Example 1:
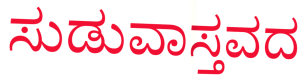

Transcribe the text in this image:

ಸುಡುವಾಸ್ತವದ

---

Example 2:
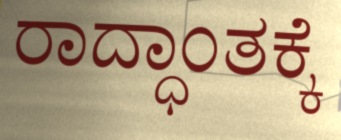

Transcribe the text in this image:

ರಾದ್ಧಾಂತಕ್ಕೆ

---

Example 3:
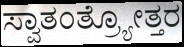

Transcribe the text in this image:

ಸ್ವಾತಂತ್ರ್ಯೋತ್ತರ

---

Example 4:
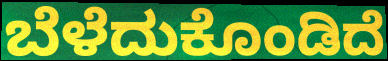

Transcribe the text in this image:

ಬೆಳೆದುಕೊಂಡಿದೆ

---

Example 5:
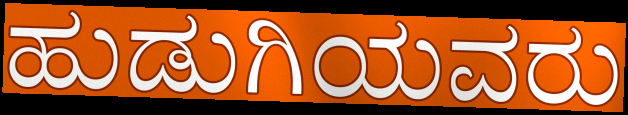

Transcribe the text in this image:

ಹುಡುಗಿಯವರು